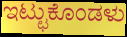
ಇಟ್ಟುಕೊಂಡಳು